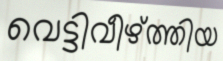
വെട്ടിവീഴ്ത്തിയ